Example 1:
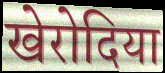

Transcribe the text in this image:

खेरोदिया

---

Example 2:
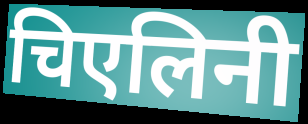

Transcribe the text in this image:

चिएलिनी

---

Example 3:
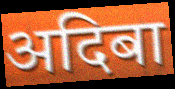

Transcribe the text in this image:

अदिबा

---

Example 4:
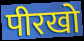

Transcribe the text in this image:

पीरखो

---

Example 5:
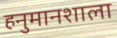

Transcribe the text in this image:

हनुमानशाला